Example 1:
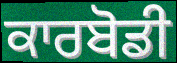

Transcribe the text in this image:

ਕਾਰਬੋਡੀ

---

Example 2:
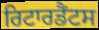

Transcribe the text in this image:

ਰਿਟਾਰਡੈਂਟਸ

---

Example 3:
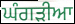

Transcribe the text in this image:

ਘੰਗੜੀਆ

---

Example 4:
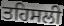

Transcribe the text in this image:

ਤਹਿਸਲੀ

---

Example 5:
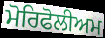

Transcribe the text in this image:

ਮੋਰਿਫੋਲੀਅਮ